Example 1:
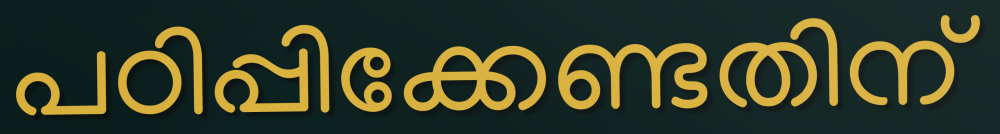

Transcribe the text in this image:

പഠിപ്പിക്കേണ്ടതിന്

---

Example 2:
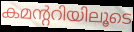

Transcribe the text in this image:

കമന്ററിയിലൂടെ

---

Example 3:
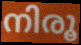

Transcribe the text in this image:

നിരൂ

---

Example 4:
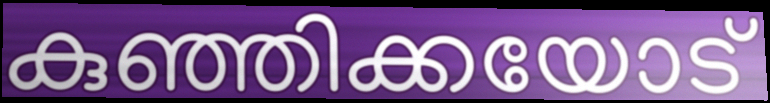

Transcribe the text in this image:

കുഞ്ഞിക്കയോട്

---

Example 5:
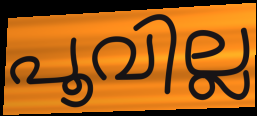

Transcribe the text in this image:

പൂവില്ല